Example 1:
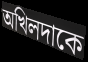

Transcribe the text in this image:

অখিলদাকে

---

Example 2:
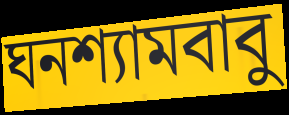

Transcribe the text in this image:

ঘনশ্যামবাবু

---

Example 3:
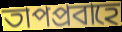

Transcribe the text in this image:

তাপপ্রবাহে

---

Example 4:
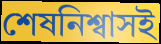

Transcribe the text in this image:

শেষনিশ্বাসই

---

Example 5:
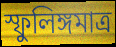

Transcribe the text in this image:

স্ফুলিঙ্গমাত্র